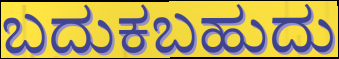
ಬದುಕಬಹುದು